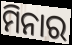
ମିନାର